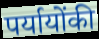
पर्यायोंकी